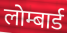
लोम्बार्ड